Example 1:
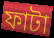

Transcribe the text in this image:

ফাটা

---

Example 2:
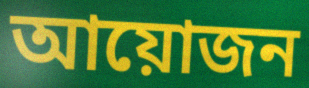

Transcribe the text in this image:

আয়োজন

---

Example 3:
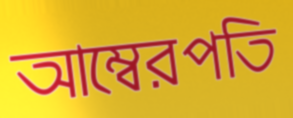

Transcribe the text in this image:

আম্বেরপতি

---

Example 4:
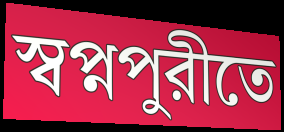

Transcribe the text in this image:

স্বপ্নপুরীতে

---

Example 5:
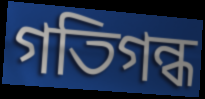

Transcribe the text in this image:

গতিগন্ধ